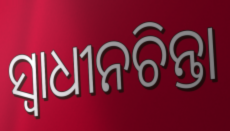
ସ୍ଵାଧୀନଚିନ୍ତା